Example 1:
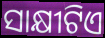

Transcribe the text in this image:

ସାକ୍ଷୀଟିଏ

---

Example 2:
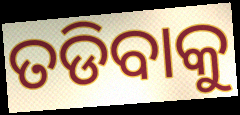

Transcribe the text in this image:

ତଡିବାକୁ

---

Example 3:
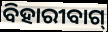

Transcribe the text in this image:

ବିହାରୀବାଗ୍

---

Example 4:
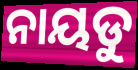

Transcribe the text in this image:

ନାୟଡୁ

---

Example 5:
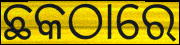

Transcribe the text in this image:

ଛକଠାରେ